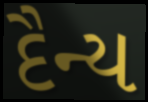
દૈન્ય